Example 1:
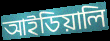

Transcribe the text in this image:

আইডিয়ালি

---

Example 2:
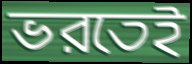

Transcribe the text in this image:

ভরতেই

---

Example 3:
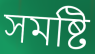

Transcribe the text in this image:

সমষ্টি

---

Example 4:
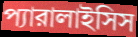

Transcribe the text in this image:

প্যারালাইসিস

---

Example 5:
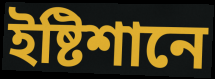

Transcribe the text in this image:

ইষ্টিশানে